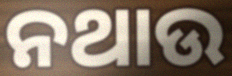
ନଥାଉ